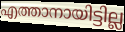
എത്താനായിട്ടില്ല